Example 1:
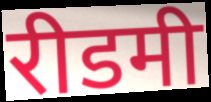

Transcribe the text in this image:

रीडमी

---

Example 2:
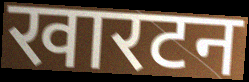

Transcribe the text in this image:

खारटन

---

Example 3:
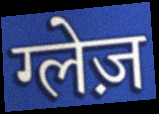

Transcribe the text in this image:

ग्लेज़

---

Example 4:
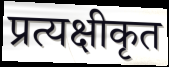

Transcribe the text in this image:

प्रत्यक्षीकृत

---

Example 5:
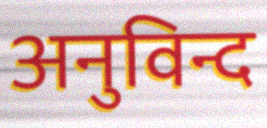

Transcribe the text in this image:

अनुविन्द